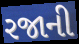
રજાની